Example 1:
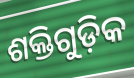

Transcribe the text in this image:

ଶକ୍ତିଗୁଡ଼ିକ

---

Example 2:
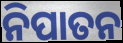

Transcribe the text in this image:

ନିପାତନ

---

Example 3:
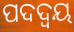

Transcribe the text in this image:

ପଦଦ୍ଵୟ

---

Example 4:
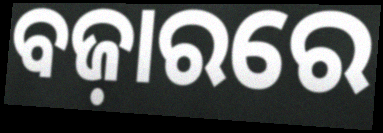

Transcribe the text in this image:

ବଜ଼ାରରେ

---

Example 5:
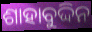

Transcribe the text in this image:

ଶାହାବୁଦ୍ଦିନ